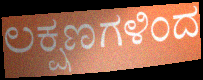
ಲಕ್ಷಣಗಳಿಂದ